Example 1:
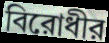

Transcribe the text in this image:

বিরোধীর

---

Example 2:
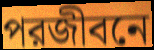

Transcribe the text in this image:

পরজীবনে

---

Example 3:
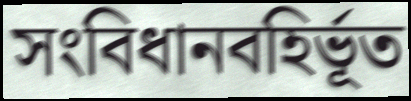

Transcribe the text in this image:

সংবিধানবহির্ভূত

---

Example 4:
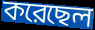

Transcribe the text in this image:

করেছেল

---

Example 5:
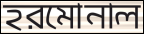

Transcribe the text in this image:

হরমোনাল